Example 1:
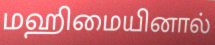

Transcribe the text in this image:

மஹிமையினால்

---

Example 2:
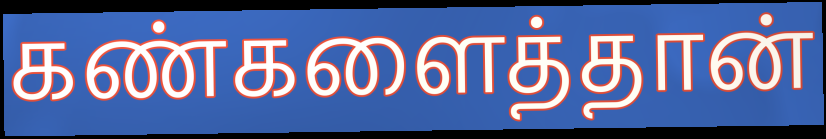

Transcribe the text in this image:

கண்களைத்தான்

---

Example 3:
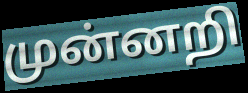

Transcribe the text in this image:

முன்னறி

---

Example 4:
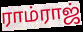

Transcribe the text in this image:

ராம்ராஜ்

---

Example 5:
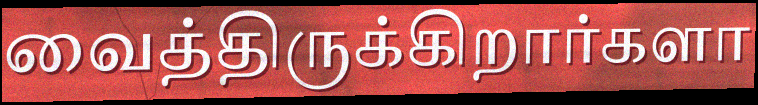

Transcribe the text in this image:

வைத்திருக்கிறார்களா